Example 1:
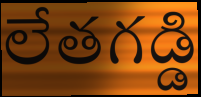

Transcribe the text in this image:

లేతగడ్డి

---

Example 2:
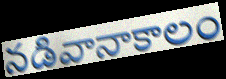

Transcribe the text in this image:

నడివానాకాలం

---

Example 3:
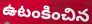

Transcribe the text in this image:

ఉటంకించిన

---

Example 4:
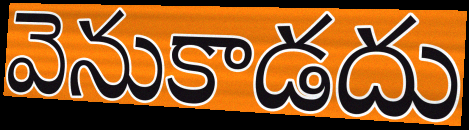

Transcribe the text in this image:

వెనుకాడదు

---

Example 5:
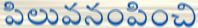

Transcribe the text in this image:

పిలువనంపించి